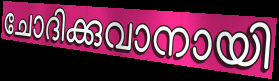
ചോദിക്കുവാനായി